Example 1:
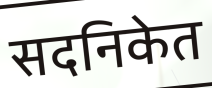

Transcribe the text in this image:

सदनिकेत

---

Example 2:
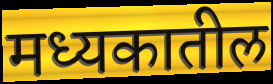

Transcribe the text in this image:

मध्यकातील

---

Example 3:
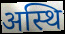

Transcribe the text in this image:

अस्थि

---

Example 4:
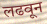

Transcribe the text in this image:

लढवून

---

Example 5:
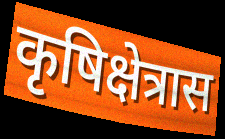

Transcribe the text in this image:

कृषिक्षेत्रास